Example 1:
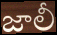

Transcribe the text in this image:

జాలీ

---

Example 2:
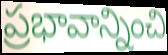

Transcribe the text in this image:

ప్రభావాన్నించి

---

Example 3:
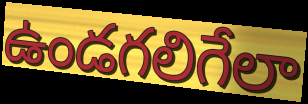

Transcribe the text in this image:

ఉండగలిగేలా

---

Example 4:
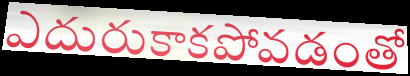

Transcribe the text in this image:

ఎదురుకాకపోవడంతో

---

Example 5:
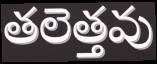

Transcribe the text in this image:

తలెత్తవు